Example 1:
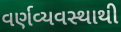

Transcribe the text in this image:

વર્ણવ્યવસ્થાથી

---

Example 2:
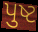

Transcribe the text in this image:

પુષ્ટ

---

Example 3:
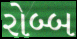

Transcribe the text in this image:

રોબ્બ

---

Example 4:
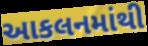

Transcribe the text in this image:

આકલનમાંથી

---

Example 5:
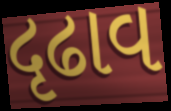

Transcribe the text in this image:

દૃઢાવ